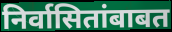
निर्वासितांबाबत